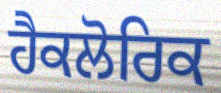
ਹੈਕਲੋਰਿਕ